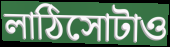
লাঠিসোটাও